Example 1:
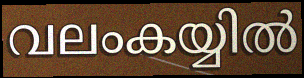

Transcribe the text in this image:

വലംകയ്യിൽ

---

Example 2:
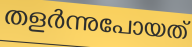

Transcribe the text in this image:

തളർന്നുപോയത്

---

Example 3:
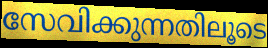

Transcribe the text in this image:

സേവിക്കുന്നതിലൂടെ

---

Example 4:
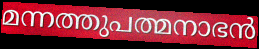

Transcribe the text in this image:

മന്നത്തുപത്മനാഭൻ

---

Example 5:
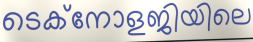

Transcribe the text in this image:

ടെക്നോളജിയിലെ